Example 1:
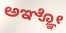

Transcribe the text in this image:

ಅಞ್ಞೋ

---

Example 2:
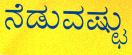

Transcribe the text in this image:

ನೆಡುವಷ್ಟು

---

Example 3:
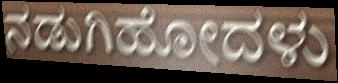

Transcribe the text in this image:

ನಡುಗಿಹೋದಳು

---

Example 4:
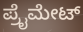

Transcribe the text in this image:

ಪ್ರೈಮೇಟ್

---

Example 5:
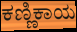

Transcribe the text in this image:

ಕಣ್ಣಿಕಾಯ